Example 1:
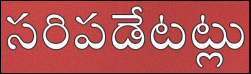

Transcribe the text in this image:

సరిపడేటట్లు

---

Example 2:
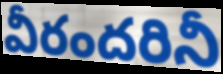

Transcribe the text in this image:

వీరందరినీ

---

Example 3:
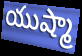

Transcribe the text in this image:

యుష్మా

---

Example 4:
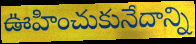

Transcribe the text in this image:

ఊహించుకునేదాన్ని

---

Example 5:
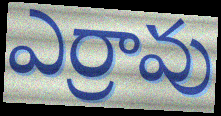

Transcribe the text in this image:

ఎర్రావు